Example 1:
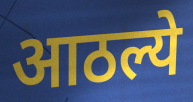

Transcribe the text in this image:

आठल्ये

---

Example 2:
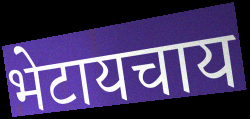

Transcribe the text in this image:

भेटायचाय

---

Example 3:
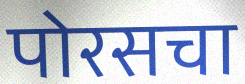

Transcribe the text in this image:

पोरसचा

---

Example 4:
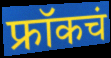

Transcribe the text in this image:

फ्रॉकचं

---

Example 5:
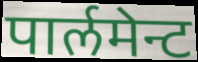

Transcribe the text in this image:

पार्लमेन्ट